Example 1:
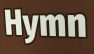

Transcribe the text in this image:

Hymn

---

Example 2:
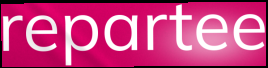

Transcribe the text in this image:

repartee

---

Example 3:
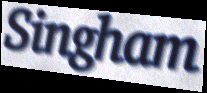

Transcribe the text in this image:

Singham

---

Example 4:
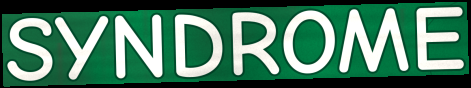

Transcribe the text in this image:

SYNDROME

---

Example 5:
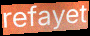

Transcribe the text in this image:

refayet